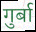
गुर्बा